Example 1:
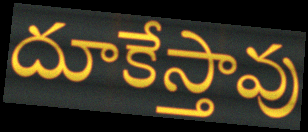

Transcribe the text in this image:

దూకేస్తావు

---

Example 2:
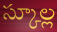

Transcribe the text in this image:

స్కూల్ల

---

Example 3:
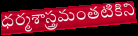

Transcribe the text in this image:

ధర్మశాస్త్రమంతటికిని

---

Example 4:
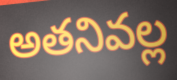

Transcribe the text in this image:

అతనివల్ల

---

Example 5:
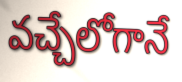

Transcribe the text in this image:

వచ్చేలోగానే